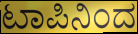
ಟಾಪಿನಿಂದ